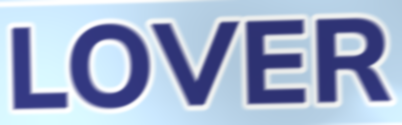
LOVER